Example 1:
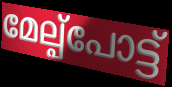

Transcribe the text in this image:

മേല്പ്പോട്ട്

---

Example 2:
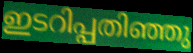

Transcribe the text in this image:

ഇടറിപ്പതിഞ്ഞു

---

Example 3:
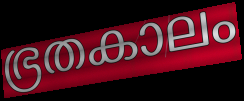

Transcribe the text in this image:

ഭ്രതകാലം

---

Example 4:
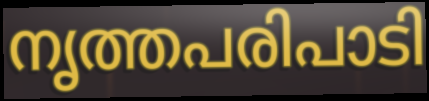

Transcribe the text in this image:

നൃത്തപരിപാടി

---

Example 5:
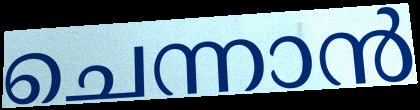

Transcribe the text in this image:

ചെന്നാൻ